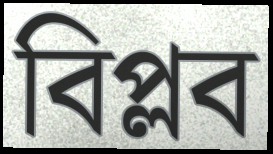
বিপ্লব